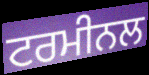
ਟਰਮੀਨਲ